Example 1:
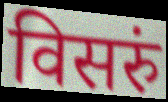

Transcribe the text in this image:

विसरुं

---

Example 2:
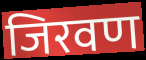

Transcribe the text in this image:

जिरवण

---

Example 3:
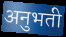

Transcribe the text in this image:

अनुभती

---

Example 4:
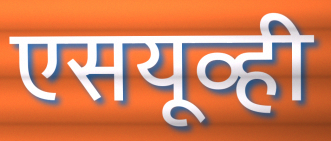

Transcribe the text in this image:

एसयूव्ही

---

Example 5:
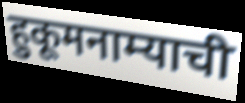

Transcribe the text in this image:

हुकूमनाम्याची